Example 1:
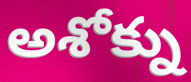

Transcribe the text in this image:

అశోక్ను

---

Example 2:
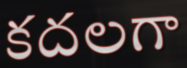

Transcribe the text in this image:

కదలగా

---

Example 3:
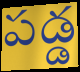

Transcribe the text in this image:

పడ్డ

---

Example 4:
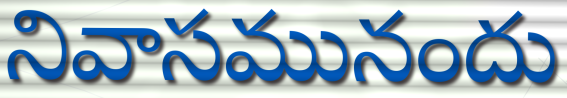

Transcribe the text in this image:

నివాసమునందు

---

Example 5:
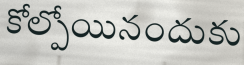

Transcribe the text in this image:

కోల్పోయినందుకు